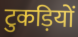
टुकड़ियों